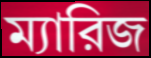
ম্যারিজ